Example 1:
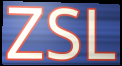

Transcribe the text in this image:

ZSL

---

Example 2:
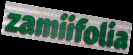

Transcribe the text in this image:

zamiifolia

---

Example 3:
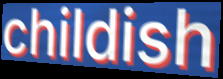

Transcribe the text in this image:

childish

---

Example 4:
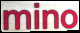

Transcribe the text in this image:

mino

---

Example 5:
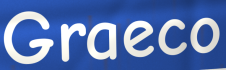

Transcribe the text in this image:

Graeco